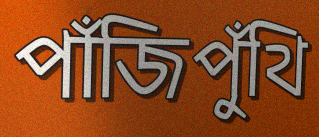
পাঁজিপুঁথি